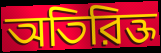
অতিরিক্ত